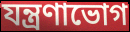
যন্ত্রণাভোগ